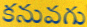
కనువగు